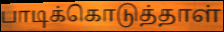
பாடிக்கொடுத்தாள்